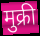
मुक्री